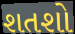
શતશો